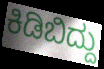
ಕಿಡಿಬಿದ್ದು